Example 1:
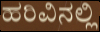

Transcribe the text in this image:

ಹರಿವಿನಲ್ಲಿ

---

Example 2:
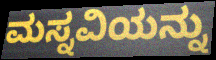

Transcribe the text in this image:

ಮಸ್ನವಿಯನ್ನು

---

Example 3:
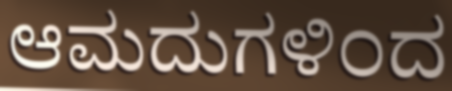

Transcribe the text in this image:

ಆಮದುಗಳಿಂದ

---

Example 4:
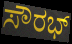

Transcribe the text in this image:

ಸೌರಭ್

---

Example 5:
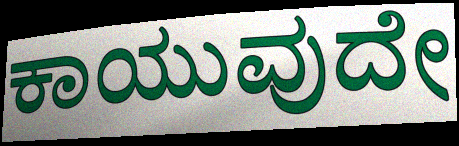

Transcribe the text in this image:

ಕಾಯುವುದೇ